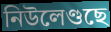
নিউলেণ্ডছে